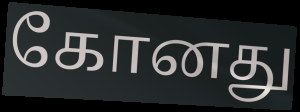
கோனது